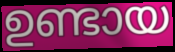
ഉണ്ടായ